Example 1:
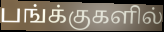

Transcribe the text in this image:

பங்க்குகளில்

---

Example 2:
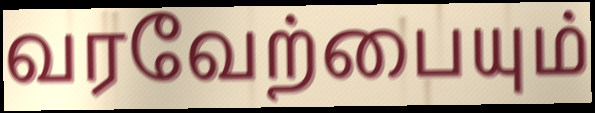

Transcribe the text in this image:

வரவேற்பையும்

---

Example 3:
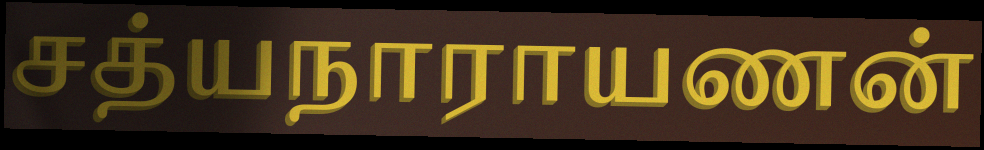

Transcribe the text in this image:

சத்யநாராயணன்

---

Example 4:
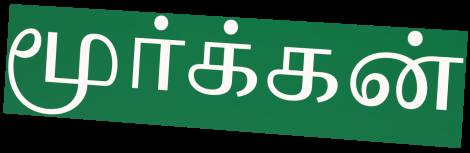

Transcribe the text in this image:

மூர்க்கன்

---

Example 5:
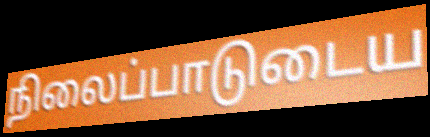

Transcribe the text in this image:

நிலைப்பாடுடைய